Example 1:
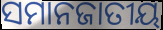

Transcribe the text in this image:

ସମାନଜାତୀୟ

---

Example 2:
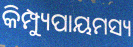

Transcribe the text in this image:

କିମ୍ପ୍ୟୁପାୟମସ୍ୟ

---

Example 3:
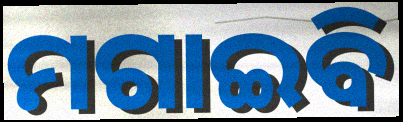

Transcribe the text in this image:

ମଗାଇବି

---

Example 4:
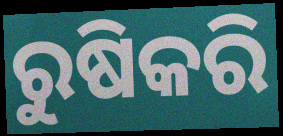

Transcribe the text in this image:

ରୁଷିକରି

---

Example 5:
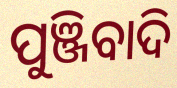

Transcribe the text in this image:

ପୁଞ୍ଜିବାଦି